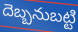
దెబ్బనుబట్టి